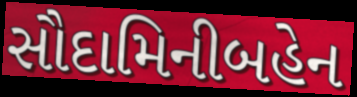
સૌદામિનીબહેન